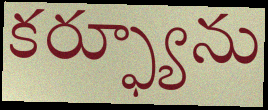
కర్ఫ్యూను